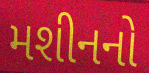
મશીનનો